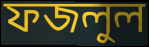
ফজলুল